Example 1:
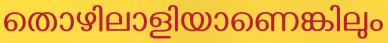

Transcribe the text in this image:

തൊഴിലാളിയാണെങ്കിലും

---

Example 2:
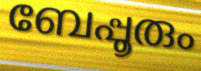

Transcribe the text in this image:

ബേപ്പൂരും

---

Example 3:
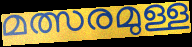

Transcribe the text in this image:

മത്സരമുള്ള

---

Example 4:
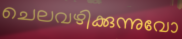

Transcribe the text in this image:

ചെലവഴിക്കുന്നുവോ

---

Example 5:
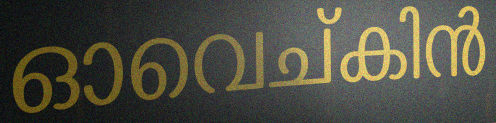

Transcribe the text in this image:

ഓവെച്കിൻ